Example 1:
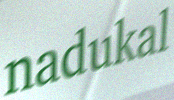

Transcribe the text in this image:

nadukal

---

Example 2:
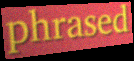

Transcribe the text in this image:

phrased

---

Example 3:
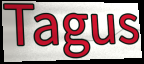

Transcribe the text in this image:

Tagus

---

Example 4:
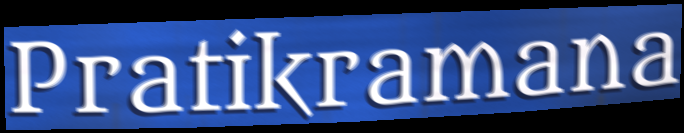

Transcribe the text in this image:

Pratikramana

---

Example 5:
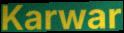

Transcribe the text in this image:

Karwar